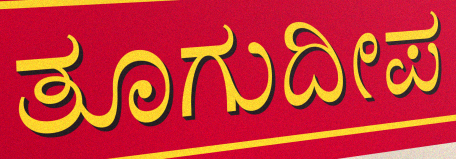
ತೂಗುದೀಪ